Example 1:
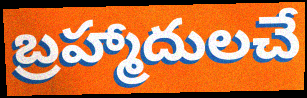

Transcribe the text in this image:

బ్రహ్మాదులచే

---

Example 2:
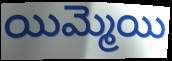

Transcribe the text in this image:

యిమ్మెయి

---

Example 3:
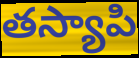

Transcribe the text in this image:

తస్యాపి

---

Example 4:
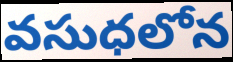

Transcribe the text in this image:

వసుధలోన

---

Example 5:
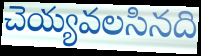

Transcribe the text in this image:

చెయ్యవలసినది